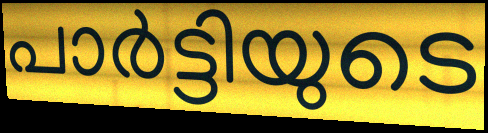
പാർട്ടിയുടെ